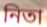
নিতা